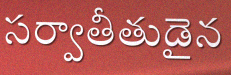
సర్వాతీతుడైన